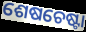
ଶେଷଚେଷ୍ଟା